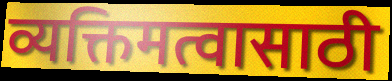
व्यक्तिमत्वासाठी